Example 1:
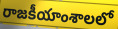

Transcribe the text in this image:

రాజకీయాంశాలలో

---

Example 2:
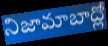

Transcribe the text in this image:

నిజామాబాద్లో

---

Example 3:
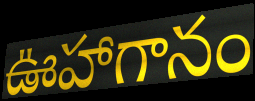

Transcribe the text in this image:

ఊహాగానం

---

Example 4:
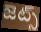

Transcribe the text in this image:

జెట్స్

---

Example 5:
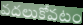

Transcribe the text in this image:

వదలుకోవటం